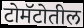
टोमॅटोतील